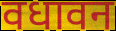
वधावन